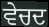
ਵੇਚਦ